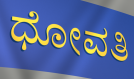
ಧೋವತಿ